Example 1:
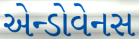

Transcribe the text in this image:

એન્ડોવેનસ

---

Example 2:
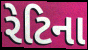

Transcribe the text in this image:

રેટિના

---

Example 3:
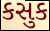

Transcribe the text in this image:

કસુક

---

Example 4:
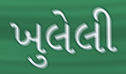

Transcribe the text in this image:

ખુલેલી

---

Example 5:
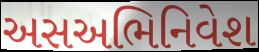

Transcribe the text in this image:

અસઅભિનિવેશ